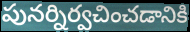
పునర్నిర్వచించడానికి